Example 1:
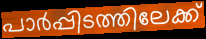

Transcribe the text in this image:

പാർപ്പിടത്തിലേക്ക്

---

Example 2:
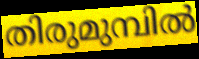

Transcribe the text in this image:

തിരുമുമ്പിൽ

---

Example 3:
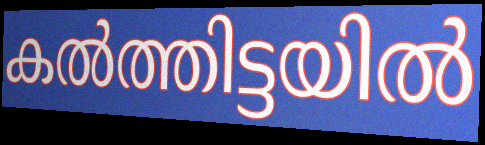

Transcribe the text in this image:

കൽത്തിട്ടയിൽ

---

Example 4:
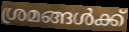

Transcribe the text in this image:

ശ്രമങ്ങൾക്ക്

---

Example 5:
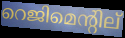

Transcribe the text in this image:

റെജിമെന്റില്